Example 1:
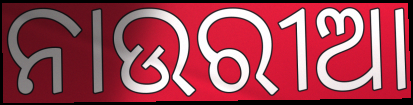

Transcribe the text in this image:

ନାଉରୀଆ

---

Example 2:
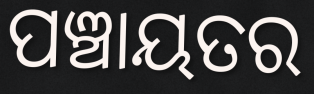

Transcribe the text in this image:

ପଞ୍ଚାୟତର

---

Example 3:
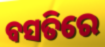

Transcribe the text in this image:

ବସତିରେ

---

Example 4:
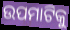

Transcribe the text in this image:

ଉପମାଟିକୁ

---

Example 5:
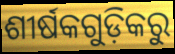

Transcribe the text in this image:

ଶୀର୍ଷକଗୁଡ଼ିକରୁ